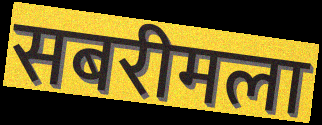
सबरीमला